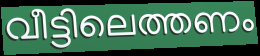
വീട്ടിലെത്തണം